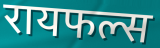
रायफल्स